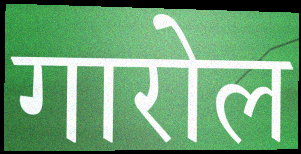
गारोल